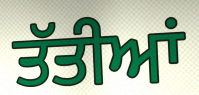
ਤੱਤੀਆਂ